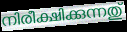
നിരീക്ഷിക്കുന്നതു്